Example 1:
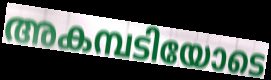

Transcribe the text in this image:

അകമ്പടിയോടെ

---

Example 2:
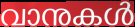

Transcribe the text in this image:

വാനുകൾ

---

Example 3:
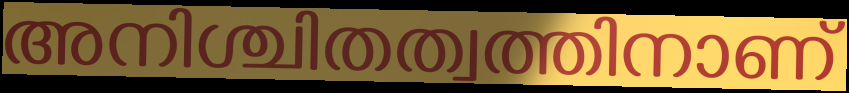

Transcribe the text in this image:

അനിശ്ചിതത്വത്തിനാണ്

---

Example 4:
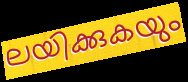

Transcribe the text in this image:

ലയിക്കുകയും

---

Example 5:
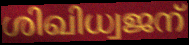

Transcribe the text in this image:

ശിഖിധ്വജന്